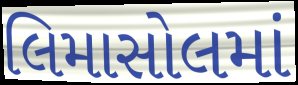
લિમાસોલમાં